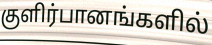
குளிர்பானங்களில்